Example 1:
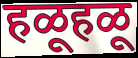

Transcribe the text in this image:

हळूहळू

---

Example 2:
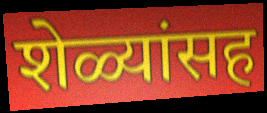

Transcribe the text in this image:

शेळ्यांसह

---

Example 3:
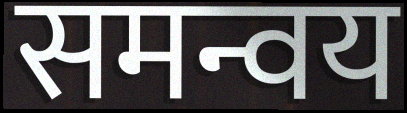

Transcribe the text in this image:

समन्वय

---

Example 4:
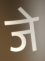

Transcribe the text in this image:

जे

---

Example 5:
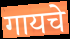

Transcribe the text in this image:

गायचे